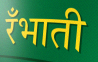
रँभाती